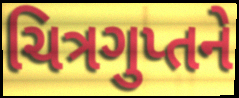
ચિત્રગુપ્તને